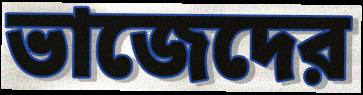
ভাজেদের